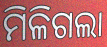
ମିଳିଗଲା